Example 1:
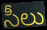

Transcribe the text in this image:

సీలు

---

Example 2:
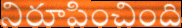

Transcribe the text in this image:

నిరూపించింది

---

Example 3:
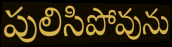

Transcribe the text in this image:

పులిసిపోవును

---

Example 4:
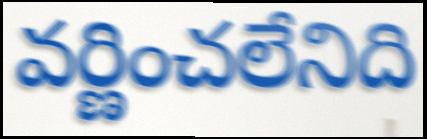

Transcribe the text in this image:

వర్ణించలేనిది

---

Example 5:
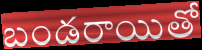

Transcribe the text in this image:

బండరాయితో